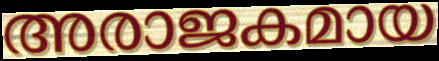
അരാജകമായ